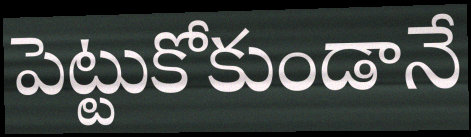
పెట్టుకోకుండానే